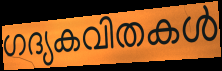
ഗദ്യകവിതകൾ